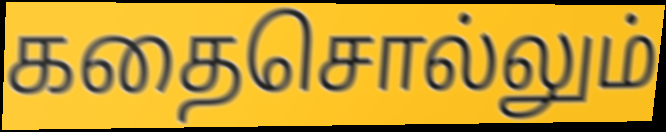
கதைசொல்லும்